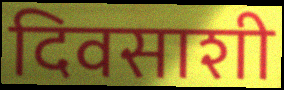
दिवसाशी